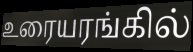
உரையரங்கில்